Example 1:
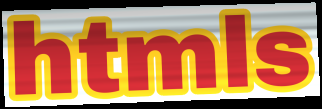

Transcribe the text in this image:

htmls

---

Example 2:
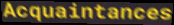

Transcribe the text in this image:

Acquaintances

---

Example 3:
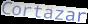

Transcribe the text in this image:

Cortazar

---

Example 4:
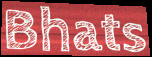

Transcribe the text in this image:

Bhats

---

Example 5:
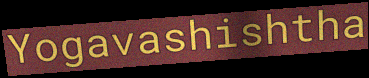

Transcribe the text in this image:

Yogavashishtha